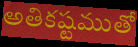
అతికష్టముతో